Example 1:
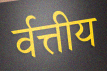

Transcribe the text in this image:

र्वत्तीय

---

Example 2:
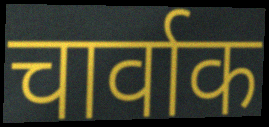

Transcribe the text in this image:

चार्वाक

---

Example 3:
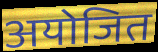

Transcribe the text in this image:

अयोजित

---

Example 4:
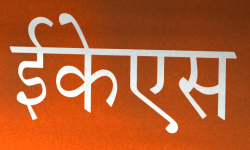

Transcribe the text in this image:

ईकेएस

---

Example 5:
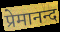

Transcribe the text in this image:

प्रेमानन्द